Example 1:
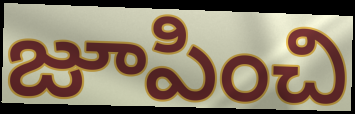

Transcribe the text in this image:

జూపించి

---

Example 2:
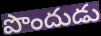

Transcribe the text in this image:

పొందుడు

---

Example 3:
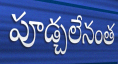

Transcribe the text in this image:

పూడ్చలేనంత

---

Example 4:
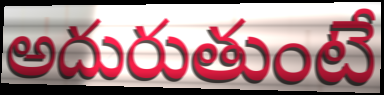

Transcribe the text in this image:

అదురుతుంటే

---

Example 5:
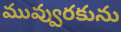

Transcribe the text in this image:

మువ్వురకును